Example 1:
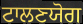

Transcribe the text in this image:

ਟਾਲਣਯੋਗ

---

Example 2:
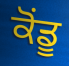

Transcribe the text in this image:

ਕੋਂਡੂ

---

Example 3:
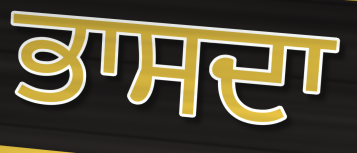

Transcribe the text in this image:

ਭਾਸਦਾ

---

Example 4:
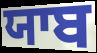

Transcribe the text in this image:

ਯਾਬ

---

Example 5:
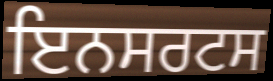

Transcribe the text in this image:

ਇਨਸਰਟਸ